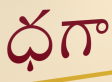
ధగా